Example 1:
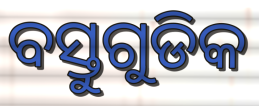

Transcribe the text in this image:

ବସ୍ତୁଗୁଡିକ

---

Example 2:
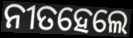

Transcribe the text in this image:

ନୀତହେଲେ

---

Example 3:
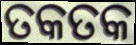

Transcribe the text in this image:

ତକତକ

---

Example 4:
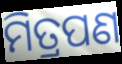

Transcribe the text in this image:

ମିତ୍ରପଣ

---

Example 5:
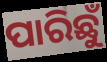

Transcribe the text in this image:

ପାରିଛୁଁ